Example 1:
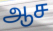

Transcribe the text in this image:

ஆச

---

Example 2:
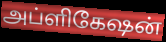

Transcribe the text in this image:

அப்ளிகேஷன்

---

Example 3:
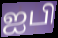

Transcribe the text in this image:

ஐபி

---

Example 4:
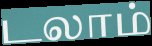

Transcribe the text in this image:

டலாம்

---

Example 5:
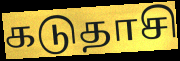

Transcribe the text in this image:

கடுதாசி